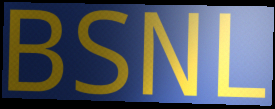
BSNL